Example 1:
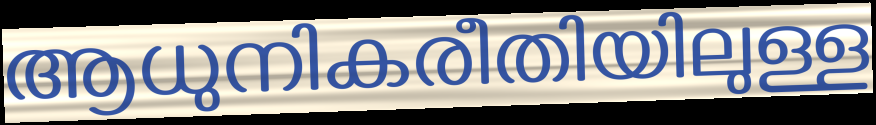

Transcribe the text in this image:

ആധുനികരീതിയിലുള്ള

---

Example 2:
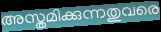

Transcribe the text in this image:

അസ്തമിക്കുന്നതുവരെ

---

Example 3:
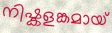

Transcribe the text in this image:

നിഷ്കളങ്കമായ്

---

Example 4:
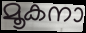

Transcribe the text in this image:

മൂകനാ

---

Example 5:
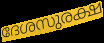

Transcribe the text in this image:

ദേശസുരക്ഷ